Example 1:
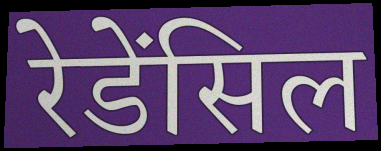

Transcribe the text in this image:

रेडेंसिल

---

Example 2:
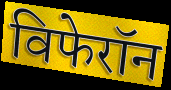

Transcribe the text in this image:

विफेरॉन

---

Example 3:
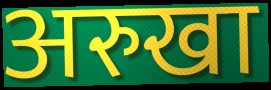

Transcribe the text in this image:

अरुखा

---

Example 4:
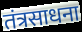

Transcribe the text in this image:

तंत्रसाधना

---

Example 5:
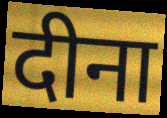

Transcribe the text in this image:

दीना